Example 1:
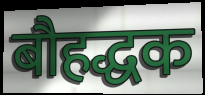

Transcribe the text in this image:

बौहद्धक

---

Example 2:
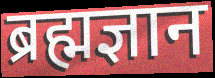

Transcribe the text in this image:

ब्रह्मज्ञान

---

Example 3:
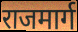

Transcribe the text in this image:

राजमार्ग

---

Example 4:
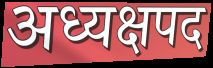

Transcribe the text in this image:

अध्यक्षपद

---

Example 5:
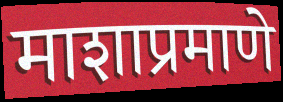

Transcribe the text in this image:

माशाप्रमाणे